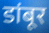
डांबूर